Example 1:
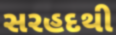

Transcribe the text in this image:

સરહદથી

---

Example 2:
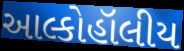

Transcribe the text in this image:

આલ્કોહૉલીય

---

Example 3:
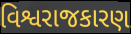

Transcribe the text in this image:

વિશ્વરાજકારણ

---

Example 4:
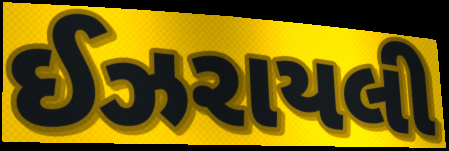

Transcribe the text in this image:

ઈઝરાયલી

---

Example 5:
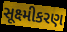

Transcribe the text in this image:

સૂક્ષ્મીકરણ